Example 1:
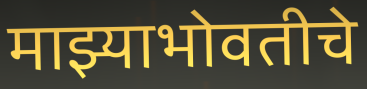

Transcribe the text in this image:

माझ्याभोवतीचे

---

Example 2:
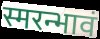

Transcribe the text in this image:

स्मरन्भावं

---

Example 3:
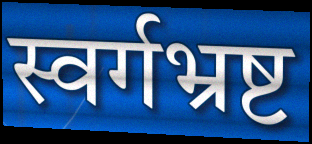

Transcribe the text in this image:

स्वर्गभ्रष्ट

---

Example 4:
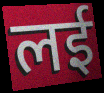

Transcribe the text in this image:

लई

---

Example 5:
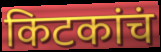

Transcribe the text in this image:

किटकांचं